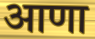
आणा